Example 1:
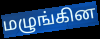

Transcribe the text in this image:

மழுங்கின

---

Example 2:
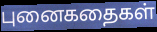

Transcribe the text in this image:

புனைகதைகள்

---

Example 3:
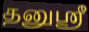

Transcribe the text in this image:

தனுஸ்ரீ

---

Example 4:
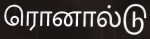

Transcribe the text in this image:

ரொனால்டு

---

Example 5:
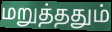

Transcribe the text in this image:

மறுத்ததும்